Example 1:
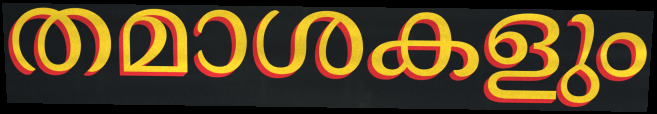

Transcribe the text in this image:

തമാശകളും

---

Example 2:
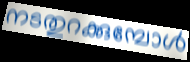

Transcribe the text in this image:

നടതുറക്കുമ്പോൾ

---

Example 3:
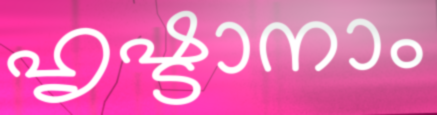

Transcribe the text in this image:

ഹൃഷ്ടാനാം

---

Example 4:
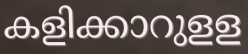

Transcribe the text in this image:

കളിക്കാറുളള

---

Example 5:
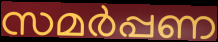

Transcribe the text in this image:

സമർപ്പണ